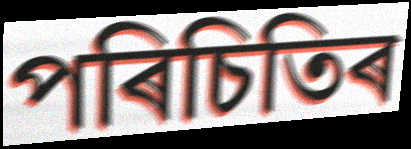
পৰিচিতিৰ